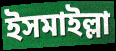
ইসমাইল্লা